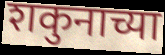
शकुनाच्या